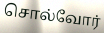
சொல்வோர்